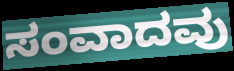
ಸಂವಾದವು